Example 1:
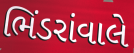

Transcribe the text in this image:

ભિંડરાંવાલે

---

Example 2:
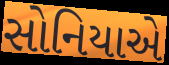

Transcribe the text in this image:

સોનિયાએ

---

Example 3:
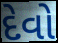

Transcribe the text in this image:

દેવો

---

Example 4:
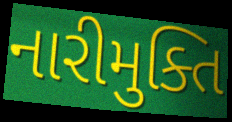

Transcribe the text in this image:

નારીમુક્તિ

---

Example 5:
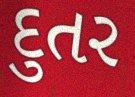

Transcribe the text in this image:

દુતર